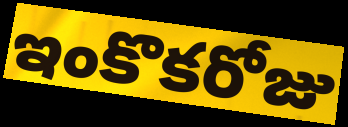
ఇంకొకరోజు